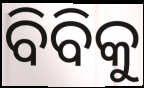
ବିବିକୁ